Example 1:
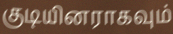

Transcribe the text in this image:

குடியினராகவும்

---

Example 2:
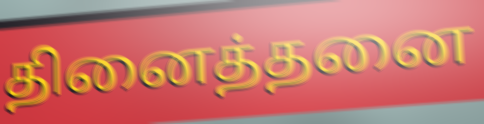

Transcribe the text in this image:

தினைத்தனை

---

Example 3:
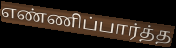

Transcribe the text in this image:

எண்ணிப்பார்த்த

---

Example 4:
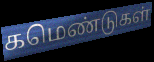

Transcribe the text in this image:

கமெண்டுகள்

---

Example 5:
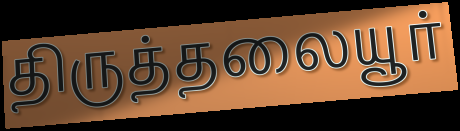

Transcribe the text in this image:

திருத்தலையூர்